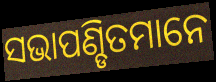
ସଭାପଣ୍ଡିତମାନେ